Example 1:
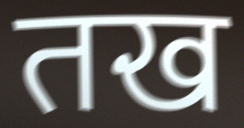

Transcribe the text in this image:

तख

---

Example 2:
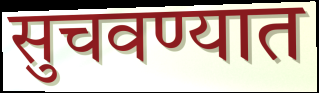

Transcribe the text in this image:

सुचवण्यात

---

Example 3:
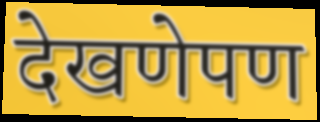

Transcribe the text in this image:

देखणेपण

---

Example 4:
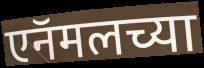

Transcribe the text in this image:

एनॅमलच्या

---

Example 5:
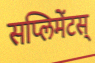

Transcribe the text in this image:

सप्लिमेंटस्